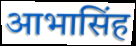
आभासिंह